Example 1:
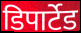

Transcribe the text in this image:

डिपार्टेड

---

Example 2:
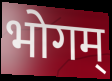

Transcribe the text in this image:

भोगम्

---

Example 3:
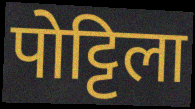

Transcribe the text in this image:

पोट्टिला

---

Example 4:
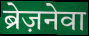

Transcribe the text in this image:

ब्रेज़नेवा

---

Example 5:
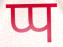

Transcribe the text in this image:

प्प